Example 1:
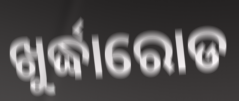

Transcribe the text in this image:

ଖୁର୍ଦ୍ଧାରୋଡ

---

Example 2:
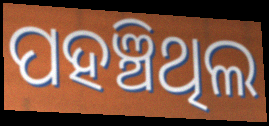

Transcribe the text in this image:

ପହଞ୍ଚିଥିଲ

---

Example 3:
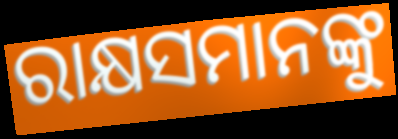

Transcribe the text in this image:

ରାକ୍ଷସମାନଙ୍କୁ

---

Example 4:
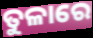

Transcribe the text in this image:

ତୁଳାରେ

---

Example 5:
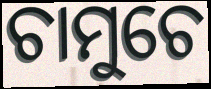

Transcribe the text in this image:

ଚାମୁଚେ